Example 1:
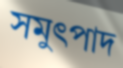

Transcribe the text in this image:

সমুৎপাদ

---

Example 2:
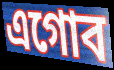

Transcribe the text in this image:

এগোব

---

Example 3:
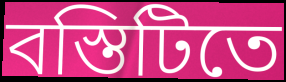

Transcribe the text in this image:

বস্তিটিতে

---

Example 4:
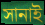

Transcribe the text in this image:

সানাই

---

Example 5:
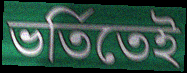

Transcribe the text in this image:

ভর্তিতেই